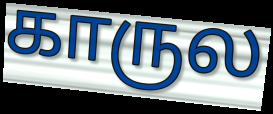
காருல